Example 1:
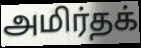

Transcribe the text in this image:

அமிர்தக்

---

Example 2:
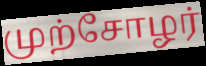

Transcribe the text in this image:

முற்சோழர்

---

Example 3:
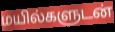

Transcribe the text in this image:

மயில்களுடன்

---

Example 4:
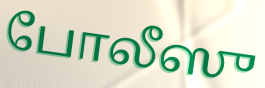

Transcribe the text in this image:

போலீஸு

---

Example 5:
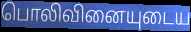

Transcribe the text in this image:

பொலிவினையுடைய